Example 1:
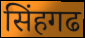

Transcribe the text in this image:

सिंहगढ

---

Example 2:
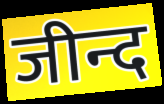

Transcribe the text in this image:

जीन्द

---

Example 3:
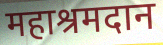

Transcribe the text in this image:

महाश्रमदान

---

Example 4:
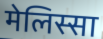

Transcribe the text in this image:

मेलिस्सा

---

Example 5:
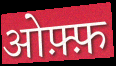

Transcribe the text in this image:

ओफ़्फ़